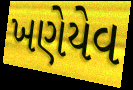
ખણેયેવ